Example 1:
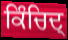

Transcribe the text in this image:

ਕਿੰਚਿਦ੍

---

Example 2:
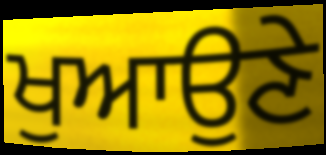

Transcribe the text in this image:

ਖੁਆਉਣੇ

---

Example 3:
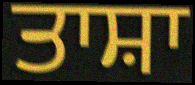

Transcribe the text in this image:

ਤਾਸ਼ਾ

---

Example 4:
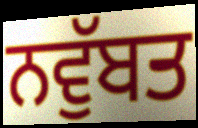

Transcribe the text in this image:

ਨਵੁੱਬਤ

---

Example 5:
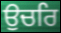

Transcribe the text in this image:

ਉਚਰਿ